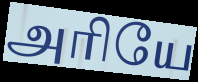
அரியே